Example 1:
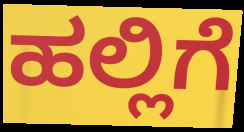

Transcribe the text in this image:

ಹಲ್ಲಿಗೆ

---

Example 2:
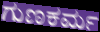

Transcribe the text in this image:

ಗುಣಕರ್ಮ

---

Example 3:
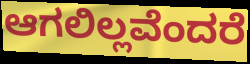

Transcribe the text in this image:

ಆಗಲಿಲ್ಲವೆಂದರೆ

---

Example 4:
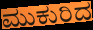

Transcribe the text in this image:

ಮುಕುರಿದ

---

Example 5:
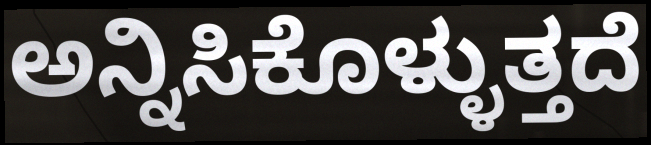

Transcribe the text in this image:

ಅನ್ನಿಸಿಕೊಳ್ಳುತ್ತದೆ